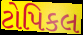
ટોપિકલ